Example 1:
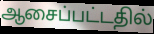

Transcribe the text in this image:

ஆசைப்பட்டதில்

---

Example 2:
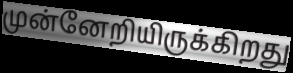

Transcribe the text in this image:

முன்னேறியிருக்கிறது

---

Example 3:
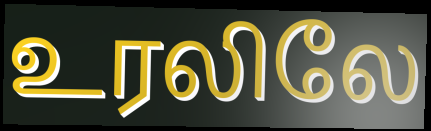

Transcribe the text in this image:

உரலிலே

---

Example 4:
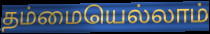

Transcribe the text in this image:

தம்மையெல்லாம்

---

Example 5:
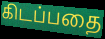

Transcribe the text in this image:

கிடப்பதை